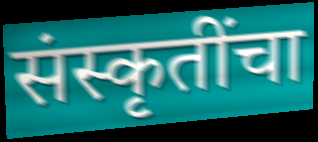
संस्कृतींचा